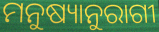
ମନୁଷ୍ୟାନୁରାଗୀ